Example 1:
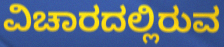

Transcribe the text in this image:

ವಿಚಾರದಲ್ಲಿರುವ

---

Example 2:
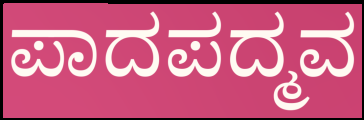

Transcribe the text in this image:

ಪಾದಪದ್ಮವ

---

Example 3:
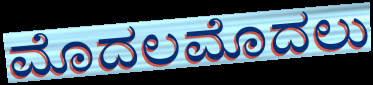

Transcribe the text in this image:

ಮೊದಲಮೊದಲು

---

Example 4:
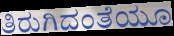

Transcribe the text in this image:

ತಿರುಗಿದಂತೆಯೂ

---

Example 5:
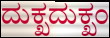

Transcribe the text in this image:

ದುಕ್ಖದುಕ್ಖಂ